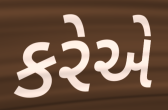
કરેએ